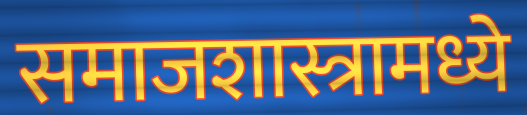
समाजशास्त्रामध्ये